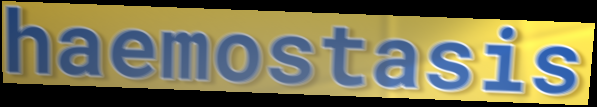
haemostasis